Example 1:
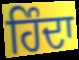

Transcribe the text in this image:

ਹਿੰਦਾ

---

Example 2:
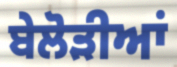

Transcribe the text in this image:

ਬੇਲੋੜੀਆਂ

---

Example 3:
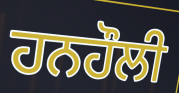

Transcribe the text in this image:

ਹਨਹੌਲੀ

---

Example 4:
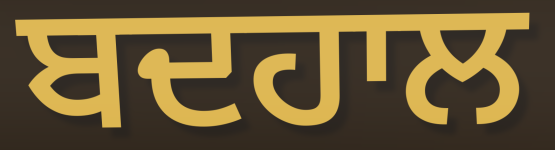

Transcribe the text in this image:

ਬਦਹਾਲ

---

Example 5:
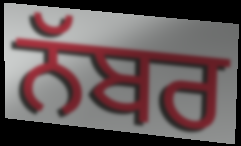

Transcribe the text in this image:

ਨੱਬਰ